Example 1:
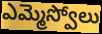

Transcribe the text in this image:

ఎమ్మెస్వోలు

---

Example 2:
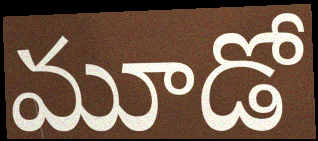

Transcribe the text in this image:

మూడో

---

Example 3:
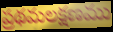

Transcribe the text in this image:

ప్రథమలక్షణము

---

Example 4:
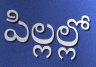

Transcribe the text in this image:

పిల్లల్లో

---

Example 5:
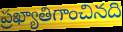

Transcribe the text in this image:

ప్రఖ్యాతిగాంచినది